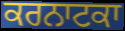
ਕਰਨਾਟਕਾ